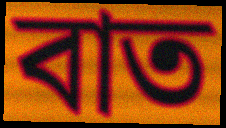
বাত